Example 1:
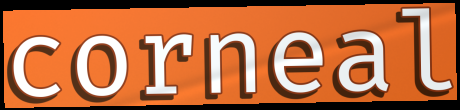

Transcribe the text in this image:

corneal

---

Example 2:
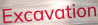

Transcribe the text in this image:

Excavation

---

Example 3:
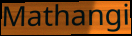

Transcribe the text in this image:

Mathangi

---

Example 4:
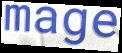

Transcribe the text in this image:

mage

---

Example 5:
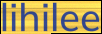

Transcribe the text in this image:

lihilee